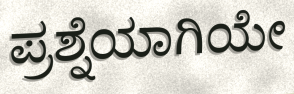
ಪ್ರಶ್ನೆಯಾಗಿಯೇ